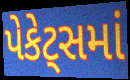
પેકેટ્સમાં